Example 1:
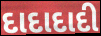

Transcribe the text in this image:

દાદાદાદી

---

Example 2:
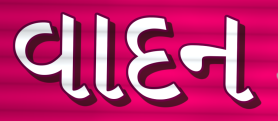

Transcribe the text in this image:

વાદન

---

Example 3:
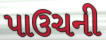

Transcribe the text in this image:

પાઉચની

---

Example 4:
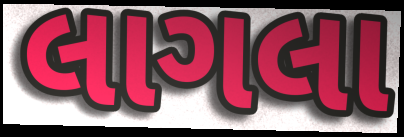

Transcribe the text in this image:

લાગલા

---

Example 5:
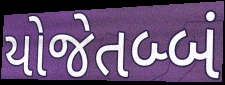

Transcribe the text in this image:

યોજેતબ્બં